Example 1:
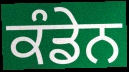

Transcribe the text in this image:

ਕੰਡੇਨ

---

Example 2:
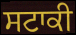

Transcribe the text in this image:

ਸਟਾਕੀ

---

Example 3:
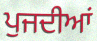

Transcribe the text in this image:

ਪੁਜਦੀਆਂ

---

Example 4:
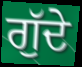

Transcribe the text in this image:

ਗੁੱਦੇ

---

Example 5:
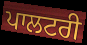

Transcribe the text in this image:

ਪਾਲਟਰੀ